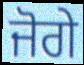
ਜੋਗੇ